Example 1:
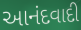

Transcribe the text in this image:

આનંદવાદી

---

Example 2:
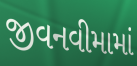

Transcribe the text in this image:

જીવનવીમામાં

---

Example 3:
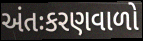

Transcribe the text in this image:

અંતઃકરણવાળો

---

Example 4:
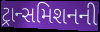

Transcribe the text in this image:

ટ્રાન્સમિશનની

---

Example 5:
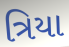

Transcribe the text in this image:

ત્રિયા